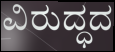
ವಿರುದ್ಧದ